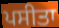
ਪਸੀਤਾ